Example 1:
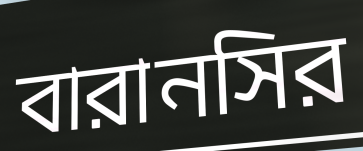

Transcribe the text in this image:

বারানসির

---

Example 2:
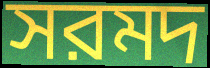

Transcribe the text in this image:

সরমদ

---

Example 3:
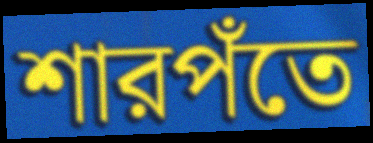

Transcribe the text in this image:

শারপঁতে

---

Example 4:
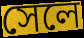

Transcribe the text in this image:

সেলে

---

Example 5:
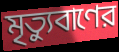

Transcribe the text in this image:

মৃত্যুবাণের